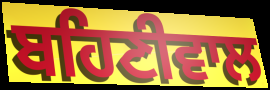
ਬਹਿਣੀਵਾਲ